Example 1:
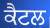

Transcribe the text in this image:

ਕੈਟਲ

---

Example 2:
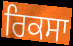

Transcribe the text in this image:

ਰਿਕਸਾ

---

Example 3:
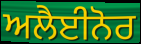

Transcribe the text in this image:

ਅਲੈਈਨੋਰ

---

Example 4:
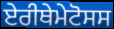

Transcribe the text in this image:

ਏਰੀਥੇਮੇਟੋਸਸ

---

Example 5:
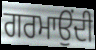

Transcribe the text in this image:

ਗਰਮਾਉਂਦੀ